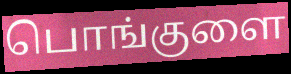
பொங்குளை